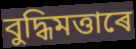
বুদ্ধিমত্তাৰে